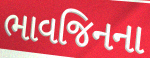
ભાવજિનના